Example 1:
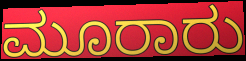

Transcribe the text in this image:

ಮೂರಾರು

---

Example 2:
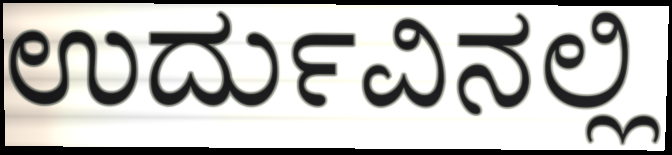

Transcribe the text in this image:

ಉರ್ದುವಿನಲ್ಲಿ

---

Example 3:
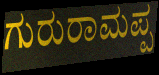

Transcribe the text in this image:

ಗುರುರಾಮಪ್ಪ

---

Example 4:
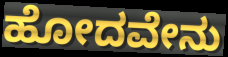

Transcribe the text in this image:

ಹೋದವೇನು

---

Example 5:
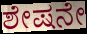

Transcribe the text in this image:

ಶೇಷನೇ